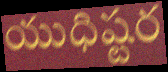
యుధిష్టర